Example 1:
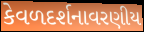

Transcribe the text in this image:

કેવળદર્શનાવરણીય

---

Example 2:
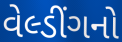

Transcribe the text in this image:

વેલ્ડીંગનો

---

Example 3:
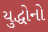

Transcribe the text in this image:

યુદ્ધોનો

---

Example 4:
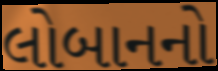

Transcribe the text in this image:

લોબાનનો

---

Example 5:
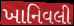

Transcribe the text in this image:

ખાનિવલી